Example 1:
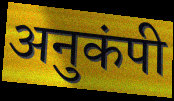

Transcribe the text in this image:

अनुकंपी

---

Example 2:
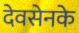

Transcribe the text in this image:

देवसेनके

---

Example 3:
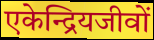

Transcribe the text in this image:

एकेन्द्रियजीवों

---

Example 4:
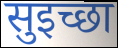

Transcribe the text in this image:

सुइच्छा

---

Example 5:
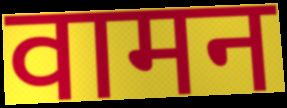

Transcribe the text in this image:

वामन